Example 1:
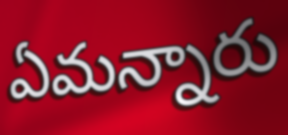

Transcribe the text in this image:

ఏమన్నారు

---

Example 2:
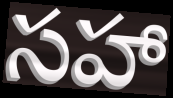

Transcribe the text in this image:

సహా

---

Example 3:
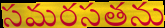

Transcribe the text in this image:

సమరసతను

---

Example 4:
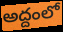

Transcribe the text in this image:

అద్దంలో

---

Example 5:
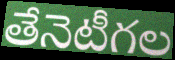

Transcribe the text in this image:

తేనెటీగల